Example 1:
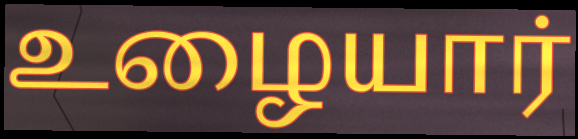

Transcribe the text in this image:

உழையார்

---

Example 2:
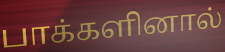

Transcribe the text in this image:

பாக்களினால்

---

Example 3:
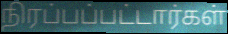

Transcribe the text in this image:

நிரப்பப்பட்டார்கள்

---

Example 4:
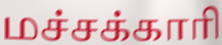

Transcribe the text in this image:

மச்சக்காரி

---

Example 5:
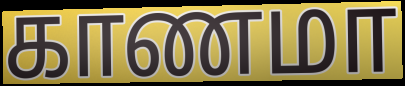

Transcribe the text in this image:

காணமா